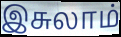
இசுலாம்